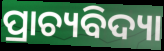
ପ୍ରାଚ୍ୟବିଦ୍ୟା